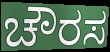
ಚೌರಸ